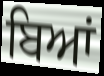
ਬਿਆਂ